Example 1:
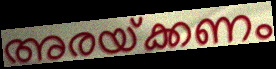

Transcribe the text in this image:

അരയ്‌ക്കണം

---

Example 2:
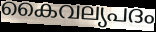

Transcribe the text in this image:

കൈവല്യപദം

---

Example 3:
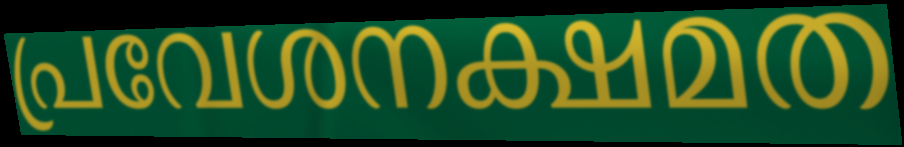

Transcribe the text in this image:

പ്രവേശനക്ഷമത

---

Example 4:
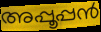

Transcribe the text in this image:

അപ്പൂപ്പൻ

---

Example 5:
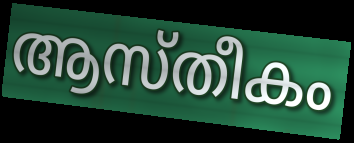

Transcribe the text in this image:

ആസ്തീകം